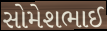
સોમેશભાઈ